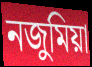
নজুমিয়া